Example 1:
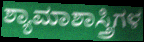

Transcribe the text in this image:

ಶ್ಯಾಮಾಶಾಸ್ತ್ರಿಗಳ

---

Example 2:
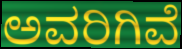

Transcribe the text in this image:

ಅವರಿಗಿವೆ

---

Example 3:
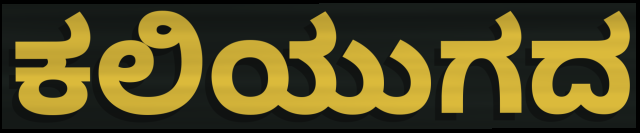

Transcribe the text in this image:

ಕಲಿಯುಗದ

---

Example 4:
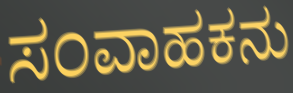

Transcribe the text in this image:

ಸಂವಾಹಕನು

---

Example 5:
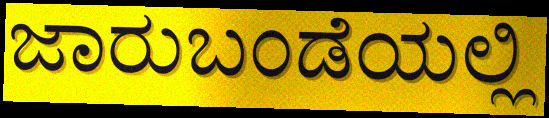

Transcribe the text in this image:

ಜಾರುಬಂಡೆಯಲ್ಲಿ